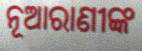
ନୂଆରାଣୀଙ୍କ